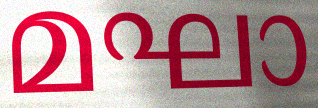
മഘാ